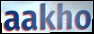
aakho